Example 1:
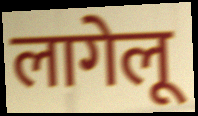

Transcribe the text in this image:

लागेलू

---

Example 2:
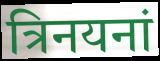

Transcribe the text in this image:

त्रिनयनां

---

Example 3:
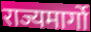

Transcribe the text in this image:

राज्यमार्गो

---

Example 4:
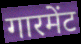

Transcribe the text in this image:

गारमेंट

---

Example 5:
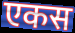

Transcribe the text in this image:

एकस